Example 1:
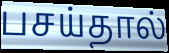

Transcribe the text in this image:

பசய்தால்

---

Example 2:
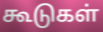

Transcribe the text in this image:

கூடுகள்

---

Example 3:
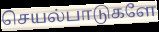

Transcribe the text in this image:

செயல்பாடுகளே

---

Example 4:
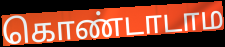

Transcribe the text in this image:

கொண்டாடாம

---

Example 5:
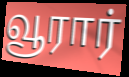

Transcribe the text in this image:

வூரார்